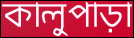
কালুপাড়া